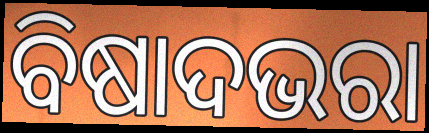
ବିଷାଦଭରା